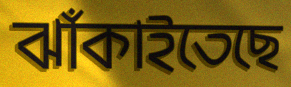
ঝাঁকাইতেছে